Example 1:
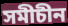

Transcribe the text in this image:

সমীচীন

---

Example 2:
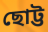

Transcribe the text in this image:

ছোট্ট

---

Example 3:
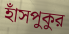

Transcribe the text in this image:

হাঁসপুকুর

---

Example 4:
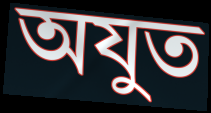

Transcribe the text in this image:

অযুত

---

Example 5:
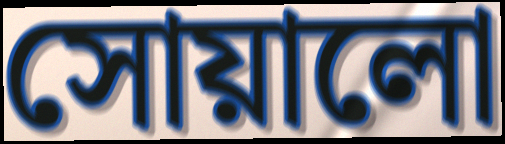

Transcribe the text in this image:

সোয়ালো